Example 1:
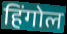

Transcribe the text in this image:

हिंगोल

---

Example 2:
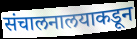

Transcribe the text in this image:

संचालनालयाकडून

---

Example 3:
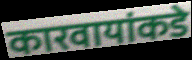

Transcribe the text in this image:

कारवायांकडे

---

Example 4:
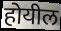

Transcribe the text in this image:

होयील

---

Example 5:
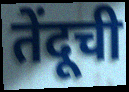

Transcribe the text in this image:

तेंदूची